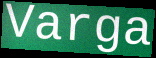
Varga